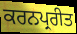
ਕਰਨਪ੍ਰਰੀਤ